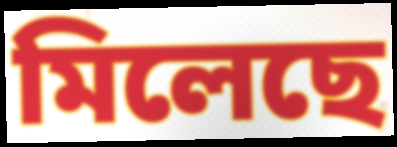
মিলেছে